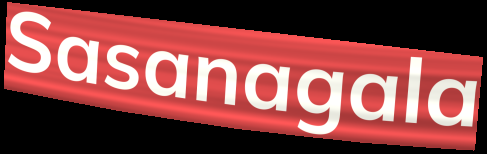
Sasanagala